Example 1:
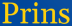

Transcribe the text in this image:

Prins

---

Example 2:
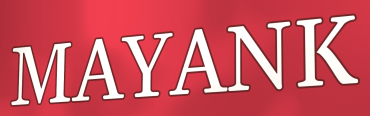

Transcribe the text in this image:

MAYANK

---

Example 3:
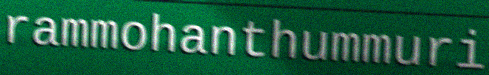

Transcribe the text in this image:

rammohanthummuri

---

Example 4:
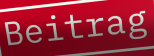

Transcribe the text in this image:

Beitrag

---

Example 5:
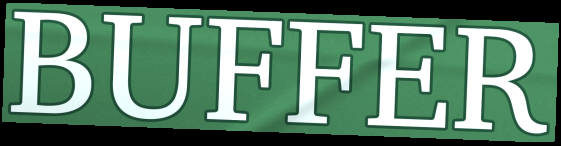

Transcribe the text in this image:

BUFFER